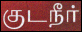
குடநீர்